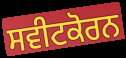
ਸਵੀਟਕੋਰਨ